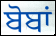
ਬੋਬਾਂ